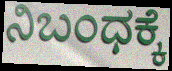
ನಿಬಂಧಕ್ಕೆ